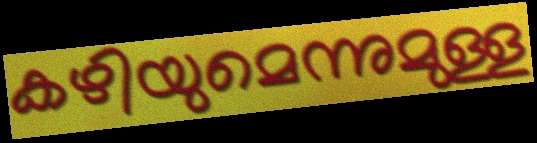
കഴിയുമെന്നുമുള്ള